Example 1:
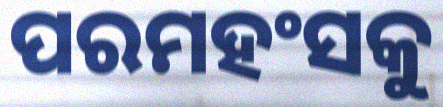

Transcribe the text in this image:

ପରମହଂସକୁ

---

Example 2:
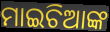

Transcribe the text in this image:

ମାଇଚିଆଙ୍କ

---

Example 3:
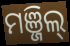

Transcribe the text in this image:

ମଞ୍ଜିଲ୍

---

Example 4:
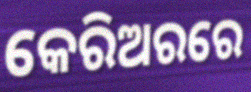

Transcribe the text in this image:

କେରିଅରରେ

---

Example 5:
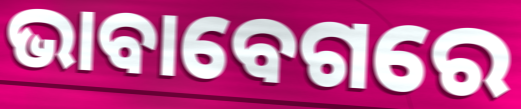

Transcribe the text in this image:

ଭାବାବେଗରେ